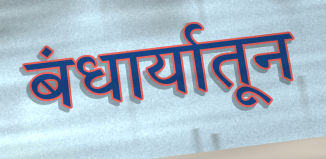
बंधार्यातून